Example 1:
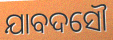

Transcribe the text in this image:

ଯାବଦସୌ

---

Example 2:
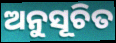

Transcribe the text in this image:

ଅନୁସୂଚିତ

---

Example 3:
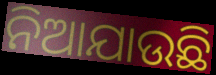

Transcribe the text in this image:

ନିଆଯାଉଛି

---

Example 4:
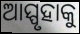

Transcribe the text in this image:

ଆସ୍ପୃହାକୁ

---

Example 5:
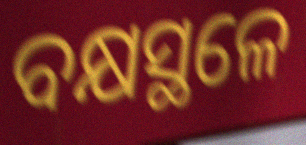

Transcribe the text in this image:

ବକ୍ଷସ୍ଥଳେ